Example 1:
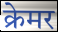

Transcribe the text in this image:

क्रेमर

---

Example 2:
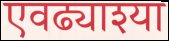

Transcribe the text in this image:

एवढ्याश्या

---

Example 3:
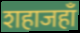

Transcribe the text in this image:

शहाजहाँ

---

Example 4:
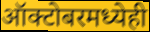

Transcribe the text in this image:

ऑक्टोबरमध्येही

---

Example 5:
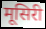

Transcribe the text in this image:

मूसिरी